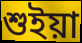
শুইয়া